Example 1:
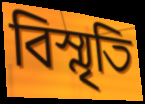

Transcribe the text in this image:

বিস্মৃতি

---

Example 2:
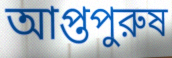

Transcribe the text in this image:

আপ্তপুরুষ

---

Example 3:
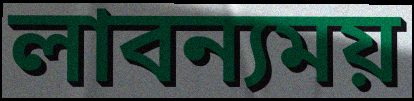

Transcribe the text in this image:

লাবন্যময়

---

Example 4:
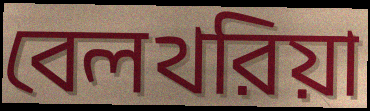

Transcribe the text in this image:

বেলথরিয়া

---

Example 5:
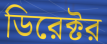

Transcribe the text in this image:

ডিরেক্টর